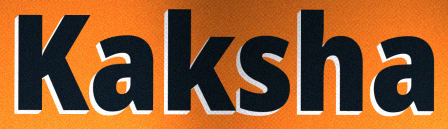
Kaksha